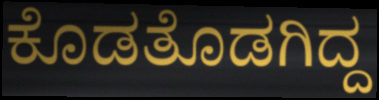
ಕೊಡತೊಡಗಿದ್ದ